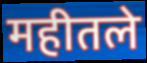
महीतले